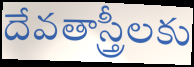
దేవతాస్త్రీలకు